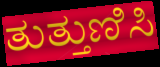
ತುತ್ತುಣಿಸಿ